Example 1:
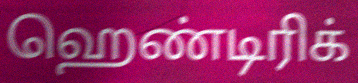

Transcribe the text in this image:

ஹெண்டிரிக்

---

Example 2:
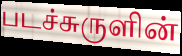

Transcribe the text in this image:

படச்சுருளின்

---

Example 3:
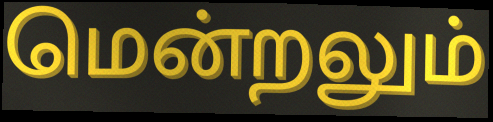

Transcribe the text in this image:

மென்றலும்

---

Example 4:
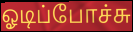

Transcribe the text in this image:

ஓடிப்போச்சு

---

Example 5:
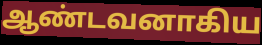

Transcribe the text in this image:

ஆண்டவனாகிய